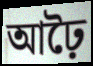
আঢ়ৈ